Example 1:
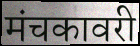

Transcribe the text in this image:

मंचकावरी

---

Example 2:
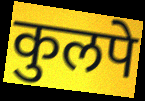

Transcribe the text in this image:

कुलपे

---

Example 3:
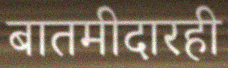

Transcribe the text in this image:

बातमीदारही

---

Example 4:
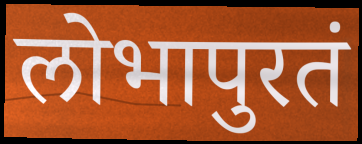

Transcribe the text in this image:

लोभापुरतं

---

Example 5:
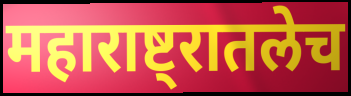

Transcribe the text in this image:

महाराष्ट्रातलेच